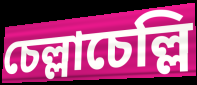
চেল্লাচেল্লি